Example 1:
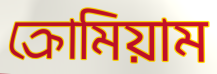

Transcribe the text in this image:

ক্রোমিয়াম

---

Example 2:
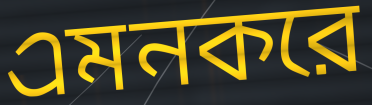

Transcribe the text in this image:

এমনকরে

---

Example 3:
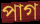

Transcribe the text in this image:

পাগ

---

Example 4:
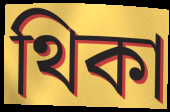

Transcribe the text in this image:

থিকা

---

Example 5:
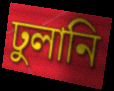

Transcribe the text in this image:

ঢুলানি